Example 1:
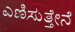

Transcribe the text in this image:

ಎಣಿಸುತ್ತೇನೆ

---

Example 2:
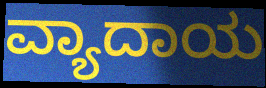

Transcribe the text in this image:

ವ್ಯಾದಾಯ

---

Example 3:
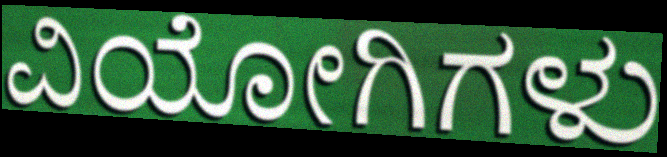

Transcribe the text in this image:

ವಿಯೋಗಿಗಳು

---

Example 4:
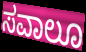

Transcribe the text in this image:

ಸವಾಲೂ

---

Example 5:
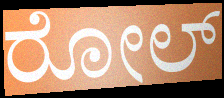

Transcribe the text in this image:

ರೋಲ್